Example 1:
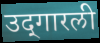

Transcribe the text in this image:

उद्‌गारली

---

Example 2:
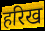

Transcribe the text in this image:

हरिख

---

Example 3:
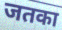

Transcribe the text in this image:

जतका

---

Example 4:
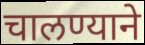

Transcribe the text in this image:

चालण्याने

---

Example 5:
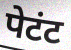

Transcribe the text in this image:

पेटंट